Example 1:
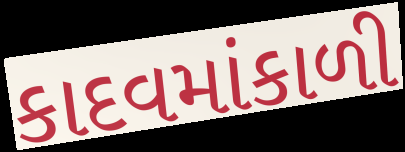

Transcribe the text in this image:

કાદવમાંકાળી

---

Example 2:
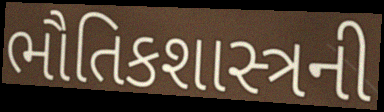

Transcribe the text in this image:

ભૌતિકશાસ્ત્રની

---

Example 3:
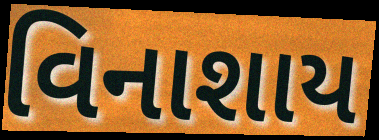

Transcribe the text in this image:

વિનાશાય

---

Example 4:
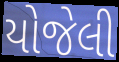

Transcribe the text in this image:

યોજેલી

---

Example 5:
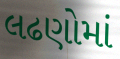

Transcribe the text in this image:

લઢણોમાં